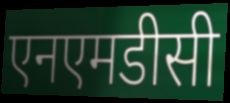
एनएमडीसी